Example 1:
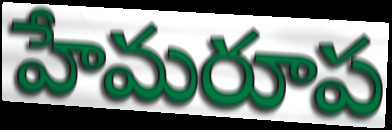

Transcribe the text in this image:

హేమరూప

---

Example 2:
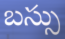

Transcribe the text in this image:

బస్సు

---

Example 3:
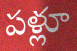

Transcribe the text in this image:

పళ్లూ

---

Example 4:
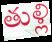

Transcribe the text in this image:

తుళ్లి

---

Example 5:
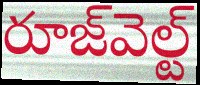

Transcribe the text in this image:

రూజ్‌వెల్ట్